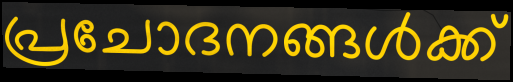
പ്രചോദനങ്ങൾക്ക്